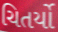
ચિતર્યો